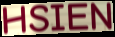
HSIEN